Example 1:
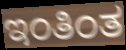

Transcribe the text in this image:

ಇಂತಿಂತ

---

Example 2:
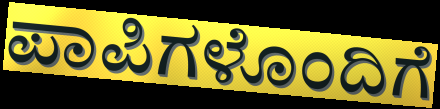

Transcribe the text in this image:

ಪಾಪಿಗಳೊಂದಿಗೆ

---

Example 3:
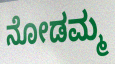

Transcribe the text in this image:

ನೋಡಮ್ಮ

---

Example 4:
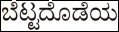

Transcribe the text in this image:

ಬೆಟ್ಟದೊಡೆಯ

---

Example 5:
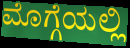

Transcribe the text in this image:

ಮೊಗ್ಗೆಯಲ್ಲಿ